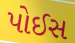
પોઈસ